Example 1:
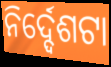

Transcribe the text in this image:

ନିର୍ଦ୍ଦେଶଟା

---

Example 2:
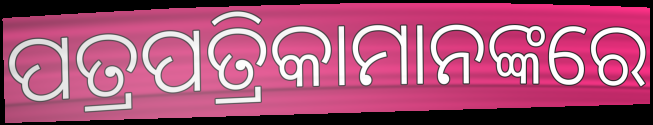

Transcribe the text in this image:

ପତ୍ରପତ୍ରିକାମାନଙ୍କରେ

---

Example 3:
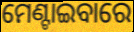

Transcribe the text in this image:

ମେଣ୍ଟାଇବାରେ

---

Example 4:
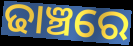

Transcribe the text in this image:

ଢାଞ୍ଚରେ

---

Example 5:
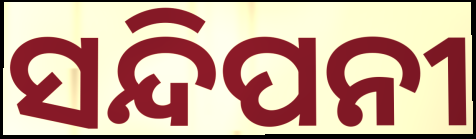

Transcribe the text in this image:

ସନ୍ଦିପନୀ